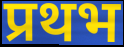
प्रथभ